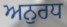
ਅਨੁਰਧ